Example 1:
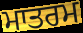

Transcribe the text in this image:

ਮਾਤਰਮ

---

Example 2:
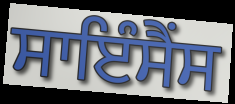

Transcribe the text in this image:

ਸਾਇੰਸੈਂਸ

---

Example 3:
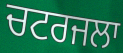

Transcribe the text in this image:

ਚਟਰਜਲਾ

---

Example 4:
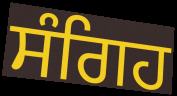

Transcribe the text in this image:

ਸੰਗਿਹ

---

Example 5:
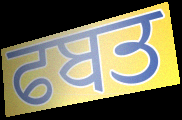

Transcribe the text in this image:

ਫਬਤ